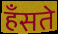
हँसते